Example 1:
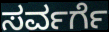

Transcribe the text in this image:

ಸರ್ವರ್ಗೆ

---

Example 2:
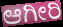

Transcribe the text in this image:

ಆಗೀರಿ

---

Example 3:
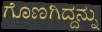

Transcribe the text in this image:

ಗೊಣಗಿದ್ದನ್ನು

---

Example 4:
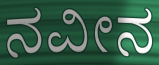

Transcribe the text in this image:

ನವೀನ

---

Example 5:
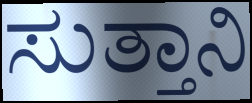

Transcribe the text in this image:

ಸುತ್ತಾನಿ